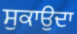
ਸੁਕਾਉਦਾ